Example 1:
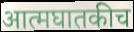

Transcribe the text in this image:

आत्मघातकीच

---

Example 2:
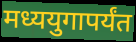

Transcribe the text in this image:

मध्ययुगापर्यंत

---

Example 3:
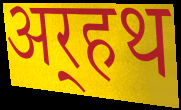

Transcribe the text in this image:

अर्हथ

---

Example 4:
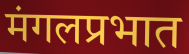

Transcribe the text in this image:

मंगलप्रभात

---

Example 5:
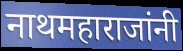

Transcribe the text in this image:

नाथमहाराजांनी